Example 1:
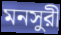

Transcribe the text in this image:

মনসুরী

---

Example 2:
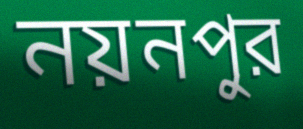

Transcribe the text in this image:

নয়নপুর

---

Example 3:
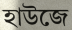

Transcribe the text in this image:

হাউজে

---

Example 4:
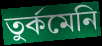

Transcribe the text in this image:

তুর্কমেনি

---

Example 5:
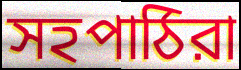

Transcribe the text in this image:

সহপাঠিরা